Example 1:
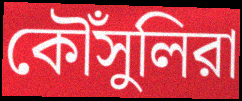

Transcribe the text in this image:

কৌঁসুলিরা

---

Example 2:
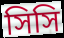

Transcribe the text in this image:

সিসি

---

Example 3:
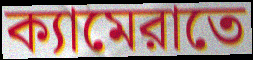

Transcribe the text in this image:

ক্যামেরাতে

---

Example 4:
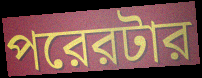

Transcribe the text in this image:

পরেরটার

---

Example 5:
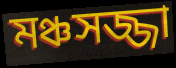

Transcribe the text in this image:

মঞ্চসজ্জা